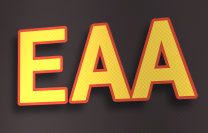
EAA